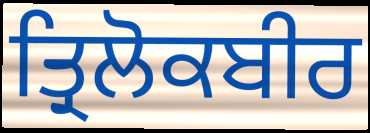
ਤ੍ਰਿਲੋਕਬੀਰ